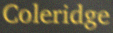
Coleridge